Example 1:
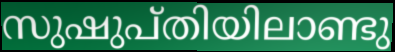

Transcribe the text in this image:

സുഷുപ്തിയിലാണ്ടു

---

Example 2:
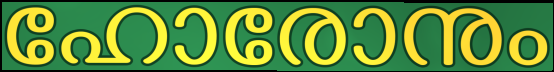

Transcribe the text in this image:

ഹോരോനും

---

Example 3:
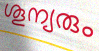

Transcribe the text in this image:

ശൂന്യരും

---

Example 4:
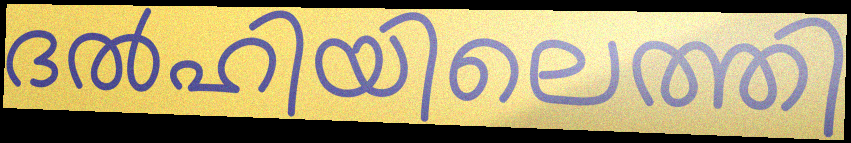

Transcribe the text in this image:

ദൽഹിയിലെത്തി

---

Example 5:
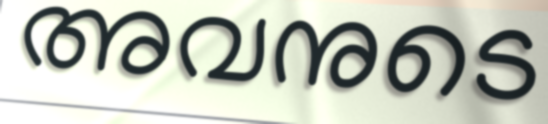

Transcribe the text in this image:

അവനുടെ